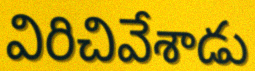
విరిచివేశాడు